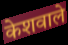
केशवाले